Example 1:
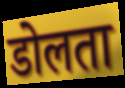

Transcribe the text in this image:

डोलता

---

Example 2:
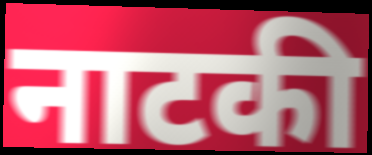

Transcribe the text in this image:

नाटकी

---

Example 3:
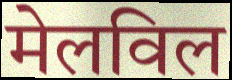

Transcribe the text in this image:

मेलविल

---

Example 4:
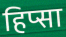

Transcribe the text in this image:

हिप्सा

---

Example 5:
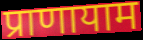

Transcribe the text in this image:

प्राणायाम